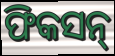
ଫିକସନ୍